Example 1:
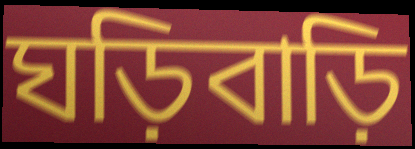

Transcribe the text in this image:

ঘড়িবাড়ি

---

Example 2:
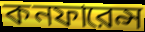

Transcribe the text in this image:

কনফারেন্স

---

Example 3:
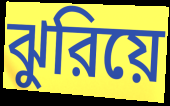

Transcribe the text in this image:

ঝুরিয়ে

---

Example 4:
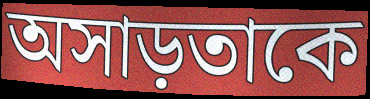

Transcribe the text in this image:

অসাড়তাকে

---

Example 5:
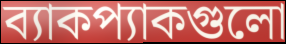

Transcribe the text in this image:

ব্যাকপ্যাকগুলো